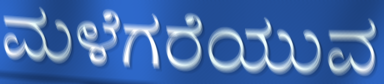
ಮಳೆಗರೆಯುವ